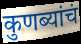
कुणब्यांचं